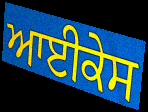
ਆਈਕੇਸ